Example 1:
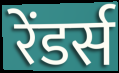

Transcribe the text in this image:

रेंडर्स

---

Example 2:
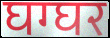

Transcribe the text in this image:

घग्घर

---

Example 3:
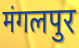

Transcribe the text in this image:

मंगलपुर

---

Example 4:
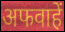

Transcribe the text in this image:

अफवाहें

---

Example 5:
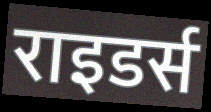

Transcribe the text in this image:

राइडर्स